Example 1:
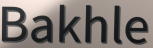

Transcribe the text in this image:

Bakhle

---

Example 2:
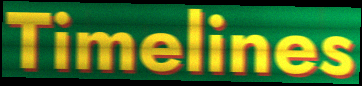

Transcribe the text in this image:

Timelines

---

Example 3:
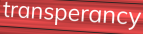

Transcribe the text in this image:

transperancy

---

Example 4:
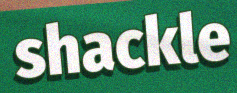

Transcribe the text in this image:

shackle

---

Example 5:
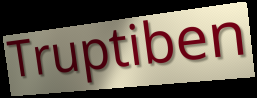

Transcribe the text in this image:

Truptiben